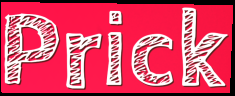
Prick